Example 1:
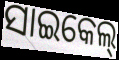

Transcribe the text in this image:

ସାଇକେଲ୍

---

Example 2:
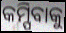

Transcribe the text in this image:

କମ୍ପିବାକୁ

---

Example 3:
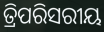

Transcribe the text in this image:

ତ୍ରିପରିସରୀୟ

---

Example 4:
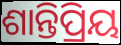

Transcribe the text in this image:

ଶାନ୍ତିପ୍ରିୟ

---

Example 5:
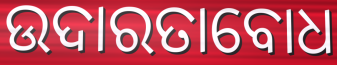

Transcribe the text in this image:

ଉଦାରତାବୋଧ